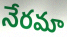
నేరమా